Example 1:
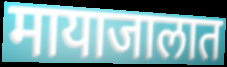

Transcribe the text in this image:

मायाजालात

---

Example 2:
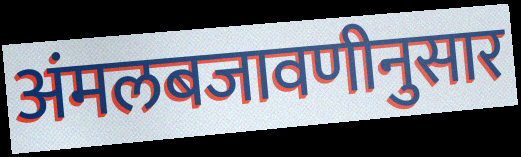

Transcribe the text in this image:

अंमलबजावणीनुसार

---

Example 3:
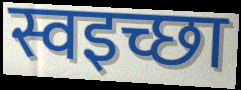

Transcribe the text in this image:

स्वइच्छा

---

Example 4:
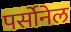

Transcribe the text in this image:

पर्सोनेल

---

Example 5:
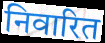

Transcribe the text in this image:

निवारित